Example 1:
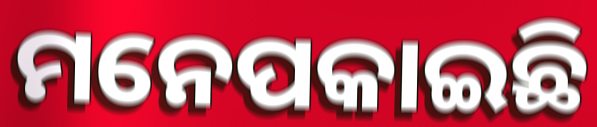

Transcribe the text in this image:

ମନେପକାଇଛି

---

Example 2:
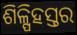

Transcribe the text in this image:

ଶିଳ୍ପିହସ୍ତର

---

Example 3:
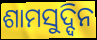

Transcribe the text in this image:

ଶାମସୁଦ୍ଦିନ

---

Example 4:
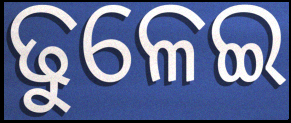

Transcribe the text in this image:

ଢୁଳେଇ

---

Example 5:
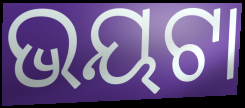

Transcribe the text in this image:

ଭୟଟା